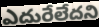
ఎదురేలేదని